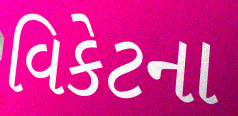
વિકેટના